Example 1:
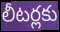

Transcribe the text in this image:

లీటర్లకు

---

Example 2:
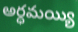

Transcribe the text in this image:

అర్ధమయ్యి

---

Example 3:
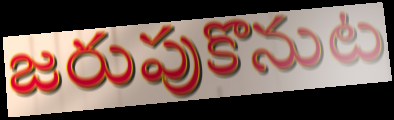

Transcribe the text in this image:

జరుపుకొనుట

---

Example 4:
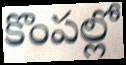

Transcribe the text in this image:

కొంపల్లో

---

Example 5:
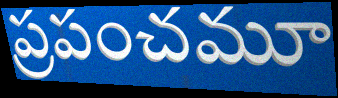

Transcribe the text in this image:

ప్రపంచమూ